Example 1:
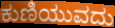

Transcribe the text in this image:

ಕುಣಿಯುವದು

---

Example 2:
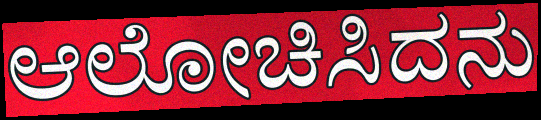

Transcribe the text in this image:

ಆಲೋಚಿಸಿದನು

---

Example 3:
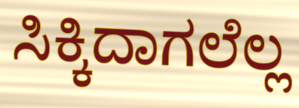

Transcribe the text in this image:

ಸಿಕ್ಕಿದಾಗಲೆಲ್ಲ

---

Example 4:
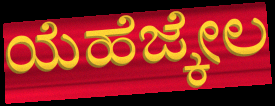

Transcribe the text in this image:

ಯೆಹೆಜ್ಕೇಲ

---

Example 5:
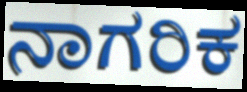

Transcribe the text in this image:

ನಾಗರಿಕ